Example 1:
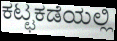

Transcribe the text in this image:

ಕಟ್ಟಕಡೆಯಲ್ಲಿ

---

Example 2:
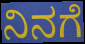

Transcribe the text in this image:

ನಿನಗೆ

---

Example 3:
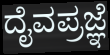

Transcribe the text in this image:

ದೈವಪ್ರಜ್ಞೆ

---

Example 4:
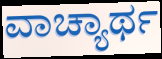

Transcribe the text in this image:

ವಾಚ್ಯಾರ್ಥ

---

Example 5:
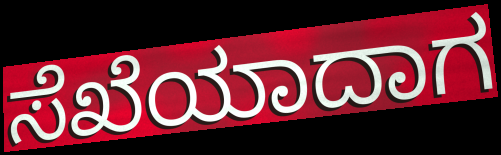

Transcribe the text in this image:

ಸೆಖೆಯಾದಾಗ